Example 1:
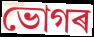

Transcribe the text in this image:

ভোগৰ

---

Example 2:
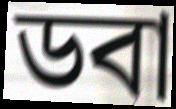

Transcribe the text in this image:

ডবা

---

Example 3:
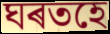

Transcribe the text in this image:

ঘৰতহে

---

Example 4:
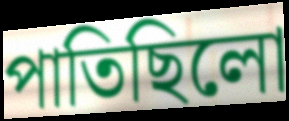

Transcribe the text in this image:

পাতিছিলো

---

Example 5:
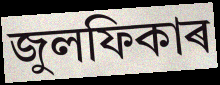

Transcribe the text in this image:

জুলফিকাৰ